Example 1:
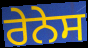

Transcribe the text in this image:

ਰੇਨੇਸ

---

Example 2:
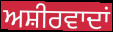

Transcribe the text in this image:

ਅਸ਼ੀਰਵਾਦਾਂ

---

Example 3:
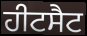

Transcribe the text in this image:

ਹੀਟਸੈਟ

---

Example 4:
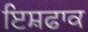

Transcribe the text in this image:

ਇਸ਼ਫਾਕ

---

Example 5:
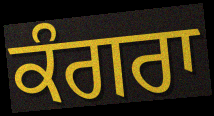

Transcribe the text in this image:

ਕੰਗਰਾ